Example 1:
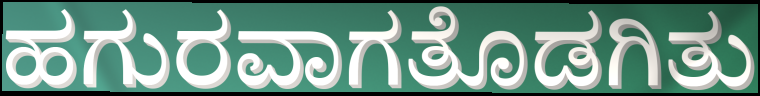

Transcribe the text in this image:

ಹಗುರವಾಗತೊಡಗಿತು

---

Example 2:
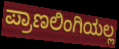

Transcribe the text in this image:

ಪ್ರಾಣಲಿಂಗಿಯಲ್ಲ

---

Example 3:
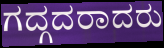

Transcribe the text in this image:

ಗದ್ಗದರಾದರು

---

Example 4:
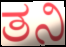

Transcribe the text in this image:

ತನಿ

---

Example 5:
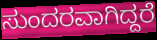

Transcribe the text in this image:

ಸುಂದರವಾಗಿದ್ದರೆ